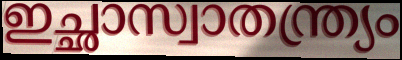
ഇച്ഛാസ്വാതന്ത്ര്യം